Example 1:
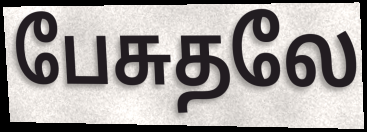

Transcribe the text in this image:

பேசுதலே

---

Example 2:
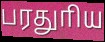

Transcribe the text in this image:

பரதுரிய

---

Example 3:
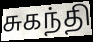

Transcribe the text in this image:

சுகந்தி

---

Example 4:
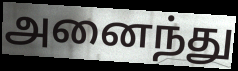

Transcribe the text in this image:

அனைந்து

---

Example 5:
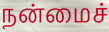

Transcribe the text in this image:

நன்மைச்